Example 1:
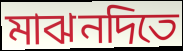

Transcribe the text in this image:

মাঝনদিতে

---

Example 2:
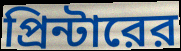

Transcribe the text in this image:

প্রিন্টারের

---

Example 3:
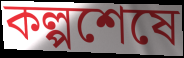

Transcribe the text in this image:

কল্পশেষে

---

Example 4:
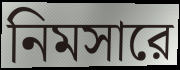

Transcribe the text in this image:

নিমসারে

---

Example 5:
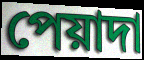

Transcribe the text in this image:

পেয়াদা